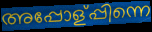
അപ്പോള്പ്പിന്നെ